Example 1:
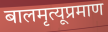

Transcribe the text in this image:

बालमृत्यूप्रमाण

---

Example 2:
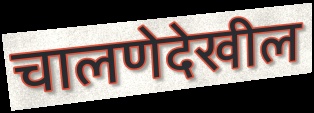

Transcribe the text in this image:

चालणेदेखील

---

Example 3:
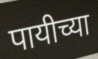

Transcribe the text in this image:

पायीच्या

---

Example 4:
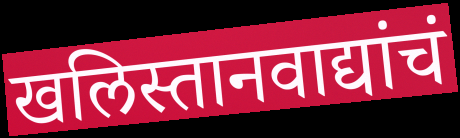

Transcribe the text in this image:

खलिस्तानवाद्यांचं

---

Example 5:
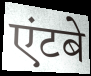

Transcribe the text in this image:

एंटबे